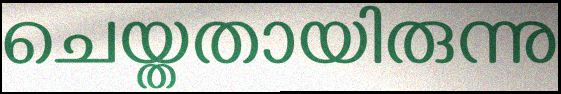
ചെയ്തതായിരുന്നു